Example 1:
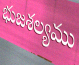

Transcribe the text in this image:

భుజశల్యము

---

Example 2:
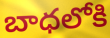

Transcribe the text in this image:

బాధలోకి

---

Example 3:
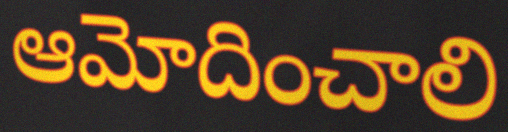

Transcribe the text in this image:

ఆమోదించాలి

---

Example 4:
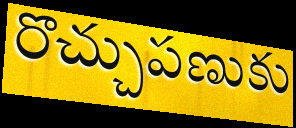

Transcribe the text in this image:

రొచ్చుపణుకు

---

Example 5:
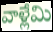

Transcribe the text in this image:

వాళ్లేమి